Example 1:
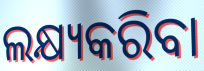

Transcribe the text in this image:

ଲକ୍ଷ୍ୟକରିବା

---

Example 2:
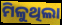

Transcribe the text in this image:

ମିଳୁଥିଲା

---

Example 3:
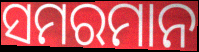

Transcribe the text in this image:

ସମରମାନ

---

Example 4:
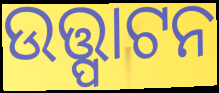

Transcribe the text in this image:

ଉତ୍ତ୍ପାଟନ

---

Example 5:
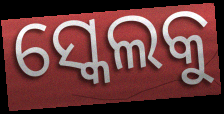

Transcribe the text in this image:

ସ୍କେଲକୁ